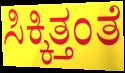
ಸಿಕ್ಕಿತ್ತಂತೆ